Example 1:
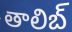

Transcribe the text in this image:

తాలిబ్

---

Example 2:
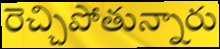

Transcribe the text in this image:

రెచ్చిపోతున్నారు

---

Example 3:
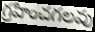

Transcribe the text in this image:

గ్రహించగలవు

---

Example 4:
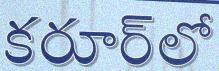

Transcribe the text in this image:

కరూర్‌లో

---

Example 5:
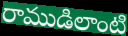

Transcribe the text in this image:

రాముడిలాంటి